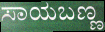
ಸಾಯಬಣ್ಣ